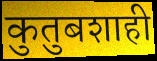
कुतुबशाही